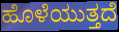
ಹೊಳೆಯುತ್ತದೆ